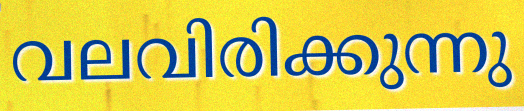
വലവിരിക്കുന്നു